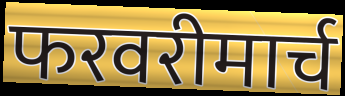
फरवरीमार्च